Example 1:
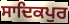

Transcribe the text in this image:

ਸਾਦਿਕਪੁਰ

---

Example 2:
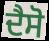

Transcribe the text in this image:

ਦੈਸੋ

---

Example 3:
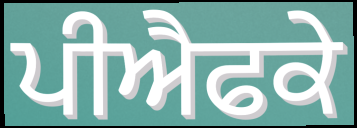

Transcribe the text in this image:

ਪੀਐਫਕੇ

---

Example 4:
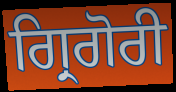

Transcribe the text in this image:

ਗ੍ਰਿਗੋਰੀ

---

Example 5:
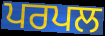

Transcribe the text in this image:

ਪਰਪਲ